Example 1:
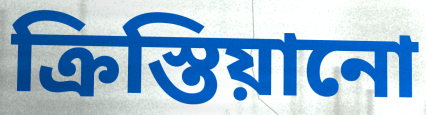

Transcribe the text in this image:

ক্রিস্তিয়ানো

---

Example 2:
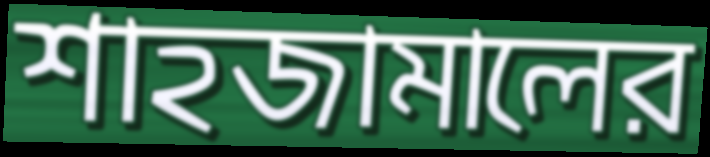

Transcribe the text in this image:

শাহজামালের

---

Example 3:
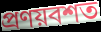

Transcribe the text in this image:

প্রণয়বশত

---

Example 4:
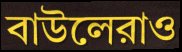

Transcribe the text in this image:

বাউলেরাও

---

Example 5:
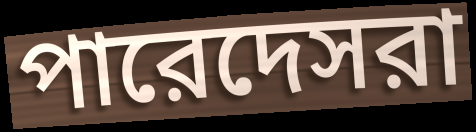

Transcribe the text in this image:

পারেদেসরা